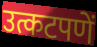
उत्कटपणें